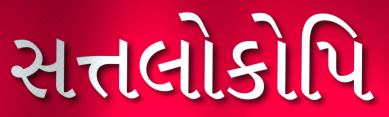
સત્તલોકોપિ